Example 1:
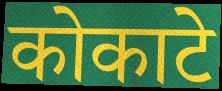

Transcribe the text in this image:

कोकाटे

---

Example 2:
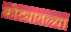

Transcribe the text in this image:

कोट्यातल्या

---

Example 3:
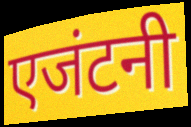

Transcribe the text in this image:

एजंटनी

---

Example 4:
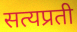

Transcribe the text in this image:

सत्यप्रती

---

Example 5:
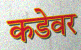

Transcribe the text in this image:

कडेवर